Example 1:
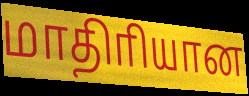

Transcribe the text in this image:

மாதிரியான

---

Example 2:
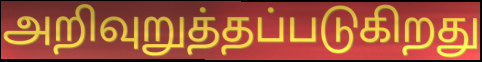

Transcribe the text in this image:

அறிவுறுத்தப்படுகிறது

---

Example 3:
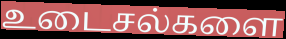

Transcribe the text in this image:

உடைசல்களை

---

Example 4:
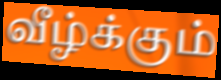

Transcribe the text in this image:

வீழ்க்கும்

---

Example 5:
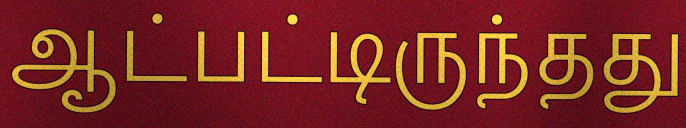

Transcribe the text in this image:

ஆட்பட்டிருந்தது